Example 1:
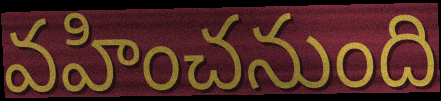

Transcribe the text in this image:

వహించనుంది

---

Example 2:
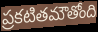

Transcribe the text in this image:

ప్రకటితమౌతోంది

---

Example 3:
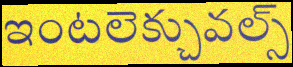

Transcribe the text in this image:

ఇంటలెక్చువల్స్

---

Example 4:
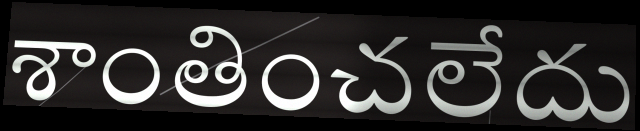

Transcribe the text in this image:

శాంతించలేదు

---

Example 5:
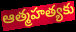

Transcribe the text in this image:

ఆత్మహత్యకు